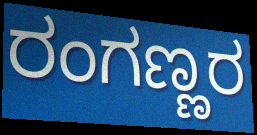
ರಂಗಣ್ಣರ